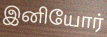
இனியோர்